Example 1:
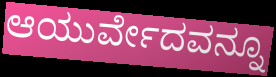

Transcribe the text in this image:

ಆಯುರ್ವೇದವನ್ನೂ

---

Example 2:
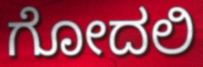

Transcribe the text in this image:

ಗೋದಲಿ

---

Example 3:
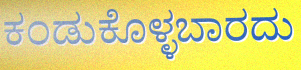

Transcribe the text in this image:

ಕಂಡುಕೊಳ್ಳಬಾರದು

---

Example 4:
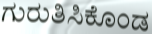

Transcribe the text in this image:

ಗುರುತಿಸಿಕೊಂಡ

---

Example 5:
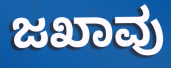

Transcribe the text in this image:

ಜಖಾವು